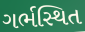
ગર્ભસ્થિત